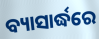
ବ୍ୟାସାର୍ଦ୍ଧରେ